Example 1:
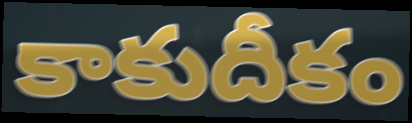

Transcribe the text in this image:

కాకుదీకం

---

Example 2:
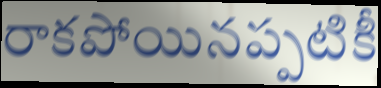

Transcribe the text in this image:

రాకపోయినప్పటికీ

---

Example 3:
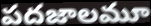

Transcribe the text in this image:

పదజాలమూ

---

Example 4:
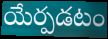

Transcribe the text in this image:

యేర్పడటం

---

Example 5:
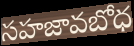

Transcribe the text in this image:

సహజావబోధ